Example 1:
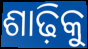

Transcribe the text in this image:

ଶାଢ଼ିକୁ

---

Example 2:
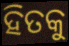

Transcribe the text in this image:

ହିତକୁ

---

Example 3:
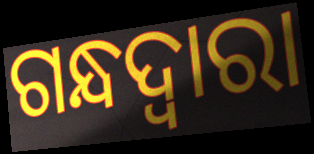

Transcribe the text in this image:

ଗନ୍ଧଦ୍ୱାରା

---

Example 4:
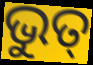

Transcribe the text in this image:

ଭୁତ୍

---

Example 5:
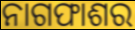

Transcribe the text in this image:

ନାଗଫାଶର